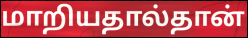
மாறியதால்தான்